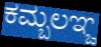
ಕಮ್ಬಲಞ್ಚ